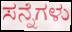
ಸನ್ನೆಗಳು